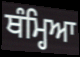
ਥੰਮ੍ਹ੍ਹਿਆ